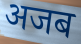
अजब